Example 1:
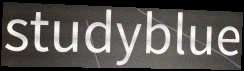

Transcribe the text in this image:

studyblue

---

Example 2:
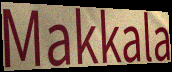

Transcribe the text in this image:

Makkala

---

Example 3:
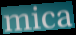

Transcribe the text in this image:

mica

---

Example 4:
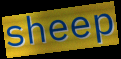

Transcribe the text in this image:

sheep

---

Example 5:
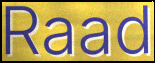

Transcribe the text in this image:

Raad